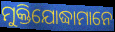
ମୁକ୍ତିଯୋଦ୍ଧାମାନେ